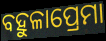
ବହୁଳାପ୍ରେମା